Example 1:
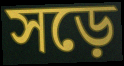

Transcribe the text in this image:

সড়ে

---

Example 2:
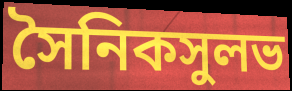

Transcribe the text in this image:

সৈনিকসুলভ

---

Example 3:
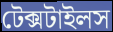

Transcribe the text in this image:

টেক্সটাইলস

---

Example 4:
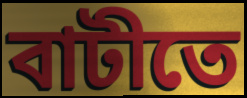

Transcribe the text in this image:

বাটীতে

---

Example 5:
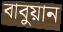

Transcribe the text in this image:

বাবুয়ান